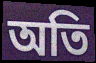
অতি